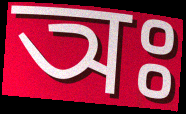
অঃ